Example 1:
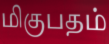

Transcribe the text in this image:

மிகுபதம்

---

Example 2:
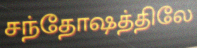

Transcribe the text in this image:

சந்தோஷத்திலே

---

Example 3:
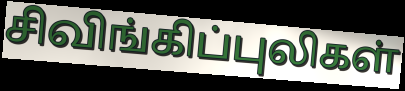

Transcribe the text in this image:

சிவிங்கிப்புலிகள்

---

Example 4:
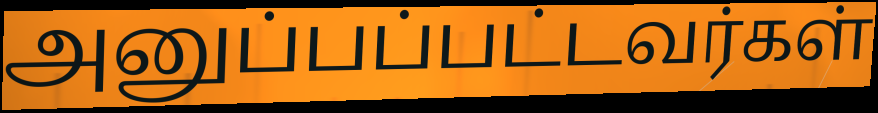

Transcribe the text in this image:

அனுப்பப்பட்டவர்கள்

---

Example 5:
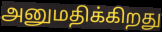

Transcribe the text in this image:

அனுமதிக்கிறது